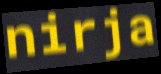
nirja